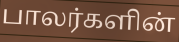
பாலர்களின்